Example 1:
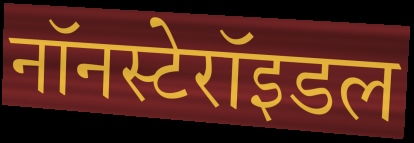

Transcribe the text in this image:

नॉनस्टेरॉइडल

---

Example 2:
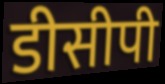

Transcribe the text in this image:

डीसीपी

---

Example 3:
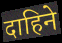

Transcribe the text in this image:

दाहिने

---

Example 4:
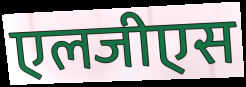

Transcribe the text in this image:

एलजीएस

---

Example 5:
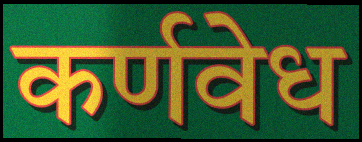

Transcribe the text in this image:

कर्णवेध